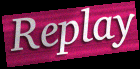
Replay